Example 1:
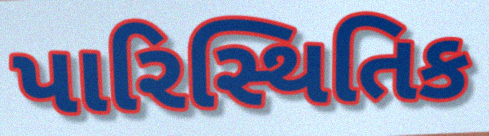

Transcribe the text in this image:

પારિસ્થિતિક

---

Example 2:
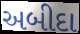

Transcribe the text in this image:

અબીદા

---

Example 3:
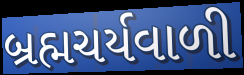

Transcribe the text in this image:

બ્રહ્મચર્યવાળી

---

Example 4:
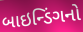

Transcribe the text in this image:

બાઇન્ડિંગનો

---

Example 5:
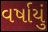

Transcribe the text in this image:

વર્ષાયું